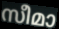
സീമാ